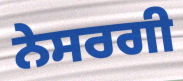
ਨੇਸਰਗੀ